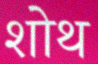
शोथ